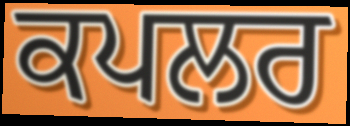
ਕਪਲਰ